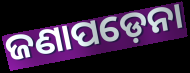
ଜଣାପଡ଼େନା